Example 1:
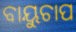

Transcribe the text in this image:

ବାୟୁଚାପ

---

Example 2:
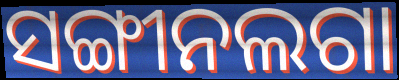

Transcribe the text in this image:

ସଙ୍ଗୀନଲଗା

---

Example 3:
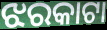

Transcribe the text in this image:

ଝରକାଟା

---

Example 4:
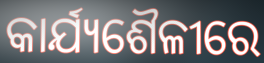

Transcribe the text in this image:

କାର୍ଯ୍ୟଶୈଳୀରେ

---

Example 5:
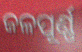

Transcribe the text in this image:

ଜଳପୂର୍ଣ୍ଣ